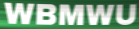
WBMWU